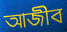
আজীব